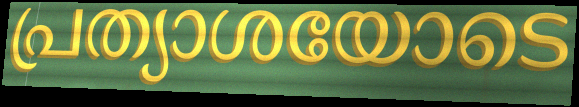
പ്രത്യാശയോടെ